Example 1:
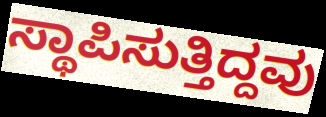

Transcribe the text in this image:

ಸ್ಥಾಪಿಸುತ್ತಿದ್ದವು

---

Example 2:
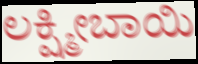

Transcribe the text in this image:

ಲಕ್ಷ್ಮೀಬಾಯಿ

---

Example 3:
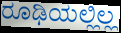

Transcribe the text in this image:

ರೂಢಿಯಲ್ಲಿಲ್ಲ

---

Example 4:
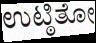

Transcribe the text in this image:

ಉಟ್ಠಿತೋ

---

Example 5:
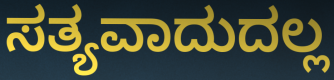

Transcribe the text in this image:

ಸತ್ಯವಾದುದಲ್ಲ